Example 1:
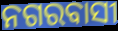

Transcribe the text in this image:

ନଗରବାସୀ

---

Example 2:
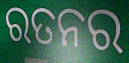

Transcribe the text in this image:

ରତନର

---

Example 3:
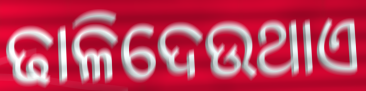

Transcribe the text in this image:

ଢାଳିଦେଉଥାଏ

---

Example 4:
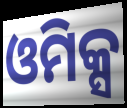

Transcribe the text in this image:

ଓମିକ୍ସ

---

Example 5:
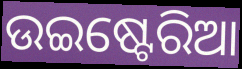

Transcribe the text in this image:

ଉଇଷ୍ଟେରିଆ